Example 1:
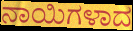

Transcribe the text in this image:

ನಾಯಿಗಳಾದ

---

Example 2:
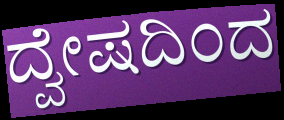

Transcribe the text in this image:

ದ್ವೇಷದಿಂದ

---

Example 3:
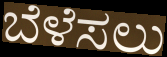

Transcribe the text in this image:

ಬೆಳೆಸಲು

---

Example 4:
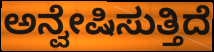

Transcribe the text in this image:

ಅನ್ವೇಷಿಸುತ್ತಿದೆ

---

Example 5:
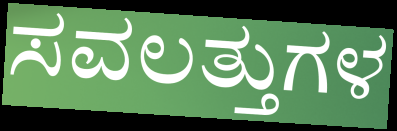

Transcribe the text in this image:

ಸವಲತ್ತುಗಳ